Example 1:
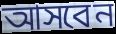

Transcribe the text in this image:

আসবেন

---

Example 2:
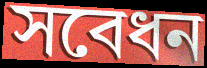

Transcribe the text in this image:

সবেধন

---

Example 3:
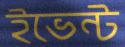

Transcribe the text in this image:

ইভেন্ট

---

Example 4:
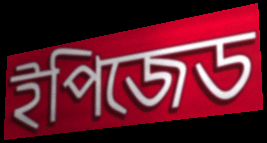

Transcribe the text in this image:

ইপিজেড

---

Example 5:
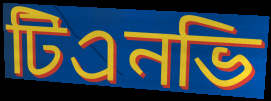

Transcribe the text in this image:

টিএনভি